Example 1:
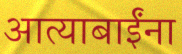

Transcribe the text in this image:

आत्याबाईंना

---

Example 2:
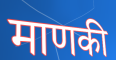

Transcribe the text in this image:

माणकी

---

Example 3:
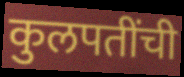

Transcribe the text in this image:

कुलपतींची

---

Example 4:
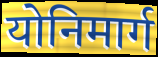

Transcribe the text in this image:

योनिमार्ग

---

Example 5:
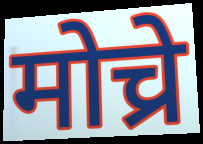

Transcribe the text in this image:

मोच्रे